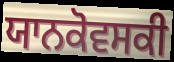
ਯਾਨਕੋਵਸਕੀ